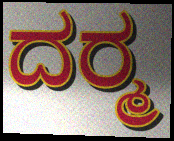
ದರ‍್ಮ